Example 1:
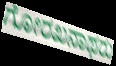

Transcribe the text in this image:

ಗೋರಖನಾಥರು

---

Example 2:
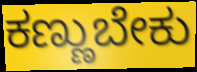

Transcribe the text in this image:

ಕಣ್ಣುಬೇಕು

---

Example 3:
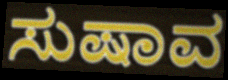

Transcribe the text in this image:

ಸುಷಾವ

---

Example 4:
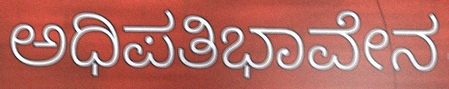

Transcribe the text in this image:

ಅಧಿಪತಿಭಾವೇನ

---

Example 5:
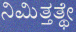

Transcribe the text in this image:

ನಿಮಿತ್ತತ್ಥೇ